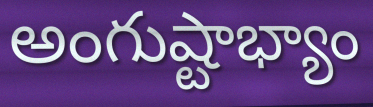
అంగుష్టాభ్యాం